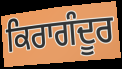
ਕਿਰਾਗੰਦੂਰ